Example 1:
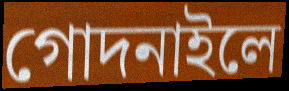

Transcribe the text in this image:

গোদনাইলে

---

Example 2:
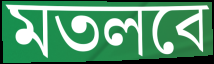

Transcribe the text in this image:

মতলবে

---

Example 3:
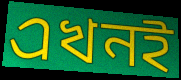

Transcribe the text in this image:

এখনই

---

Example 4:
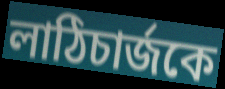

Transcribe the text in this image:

লাঠিচার্জকে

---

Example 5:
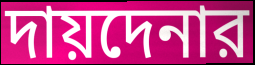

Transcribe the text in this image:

দায়দেনার